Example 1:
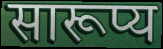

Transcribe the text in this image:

सारूप्य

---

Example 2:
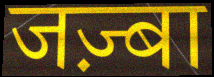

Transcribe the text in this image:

जज़्बा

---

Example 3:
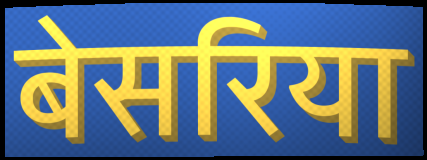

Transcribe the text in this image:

बेसरिया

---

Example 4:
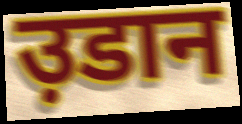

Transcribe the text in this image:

उ़डान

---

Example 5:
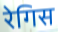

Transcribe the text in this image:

रेगिस